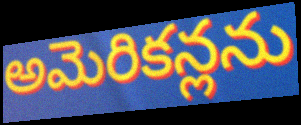
అమెరికన్లను